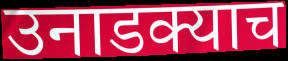
उनाडक्याच